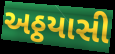
અઠ્ઠયાસી